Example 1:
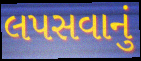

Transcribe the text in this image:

લપસવાનું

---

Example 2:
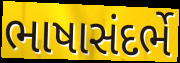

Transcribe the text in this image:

ભાષાસંદર્ભે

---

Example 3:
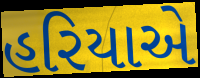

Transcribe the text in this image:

હરિયાએ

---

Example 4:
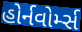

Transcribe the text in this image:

હોર્નવોર્મ્સ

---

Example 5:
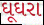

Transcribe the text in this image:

ઘૂઘરા